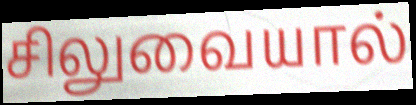
சிலுவையால்